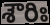
శౌరిః